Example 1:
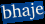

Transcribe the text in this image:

bhaje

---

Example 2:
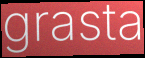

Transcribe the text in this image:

grasta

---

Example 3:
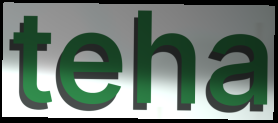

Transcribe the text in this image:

teha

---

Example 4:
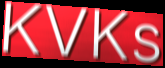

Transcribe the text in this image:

KVKs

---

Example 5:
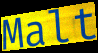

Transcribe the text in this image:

Malt